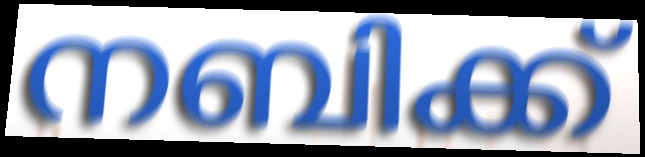
നബിക്ക്